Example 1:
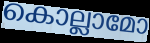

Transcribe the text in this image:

കൊല്ലാമോ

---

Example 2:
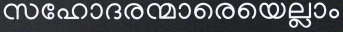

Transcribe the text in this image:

സഹോദരന്മാരെയെല്ലാം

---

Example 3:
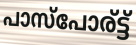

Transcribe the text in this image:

പാസ്പോര്ട്ട്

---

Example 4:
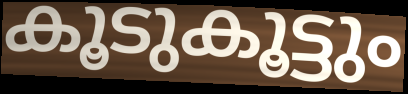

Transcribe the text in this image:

കൂടുകൂട്ടും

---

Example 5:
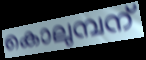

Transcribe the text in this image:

കൊലുമ്പന്